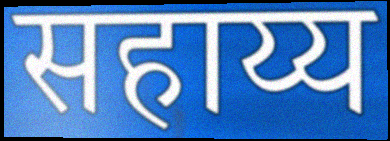
सहाय्य